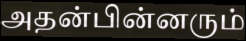
அதன்பின்னரும்